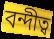
বন্দীত্ব